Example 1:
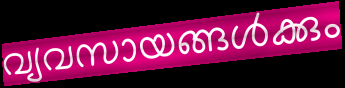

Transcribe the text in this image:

വ്യവസായങ്ങൾക്കും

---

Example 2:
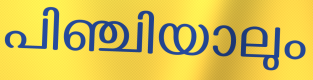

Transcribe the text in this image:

പിഞ്ചിയാലും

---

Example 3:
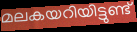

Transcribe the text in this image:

മലകയറിയിട്ടുണ്ട്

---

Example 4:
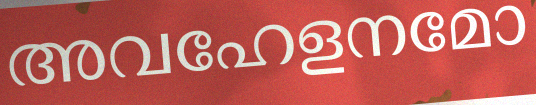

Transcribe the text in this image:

അവഹേളനമോ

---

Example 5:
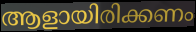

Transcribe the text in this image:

ആളായിരിക്കണം